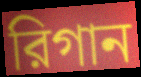
রিগান